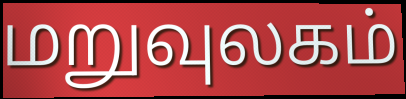
மறுவுலகம்